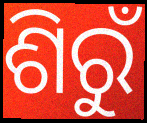
ଶିରୁଁ